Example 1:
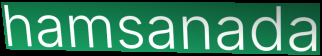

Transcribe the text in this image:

hamsanada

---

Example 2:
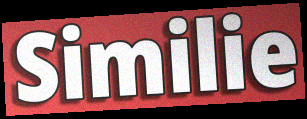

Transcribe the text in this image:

Similie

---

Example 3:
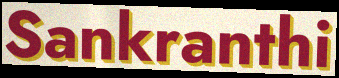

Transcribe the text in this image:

Sankranthi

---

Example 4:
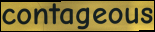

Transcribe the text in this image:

contageous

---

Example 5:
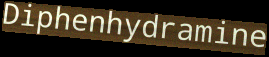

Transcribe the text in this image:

Diphenhydramine